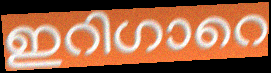
ഇറിഗാറെ